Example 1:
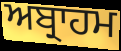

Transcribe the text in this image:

ਅਬ੍ਰਾਹਮ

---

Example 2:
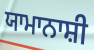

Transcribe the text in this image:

ਯਾਮਾਨਾਸ਼ੀ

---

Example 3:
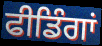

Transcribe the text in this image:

ਫੀਡਿੰਗਾਂ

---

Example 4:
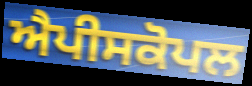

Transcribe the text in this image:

ਐਪੀਸਕੋਪਲ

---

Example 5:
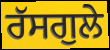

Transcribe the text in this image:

ਰੱਸਗੁਲੇ